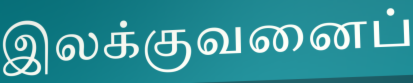
இலக்குவனைப்